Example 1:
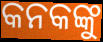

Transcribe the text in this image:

କନକଙ୍କୁ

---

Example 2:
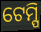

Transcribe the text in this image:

ଟେମ୍ପି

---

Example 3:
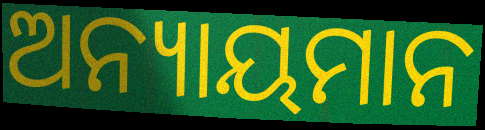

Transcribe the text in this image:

ଅନ୍ୟାୟମାନ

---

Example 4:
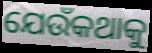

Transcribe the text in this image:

ଯେଉଁକଥାକୁ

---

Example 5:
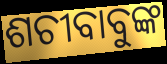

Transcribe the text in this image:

ଶଚୀବାବୁଙ୍କ